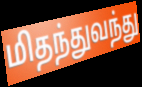
மிதந்துவந்து